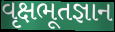
વૃક્ષભૂતજ્ઞાન